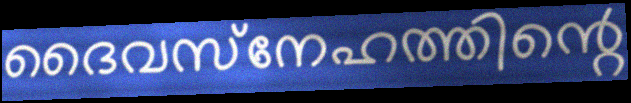
ദൈവസ്‌നേഹത്തിന്റെ